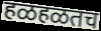
हळहळतच